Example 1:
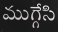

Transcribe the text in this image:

ముగ్గేసి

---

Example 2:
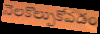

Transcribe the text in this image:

నెలకొల్పుకోవడం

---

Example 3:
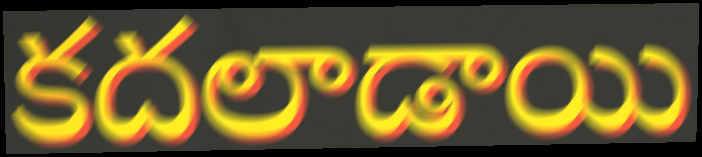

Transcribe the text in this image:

కదలాడాయి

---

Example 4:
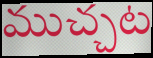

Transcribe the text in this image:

ముచ్చట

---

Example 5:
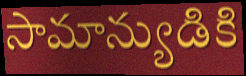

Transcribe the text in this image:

సామాన్యుడికి